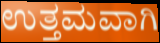
ಉತ್ತಮವಾಗಿ